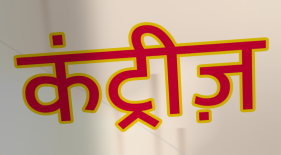
कंट्रीज़